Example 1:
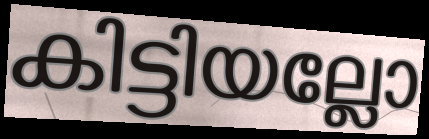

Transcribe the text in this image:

കിട്ടിയല്ലോ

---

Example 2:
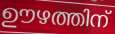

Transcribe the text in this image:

ഊഴത്തിന്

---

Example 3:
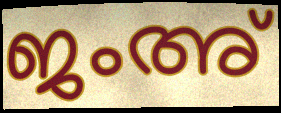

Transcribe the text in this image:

ജംഅ്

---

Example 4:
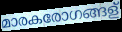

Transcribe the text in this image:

മാരകരോഗങ്ങള്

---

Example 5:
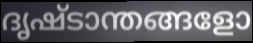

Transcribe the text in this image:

ദൃഷ്ടാന്തങ്ങളോ